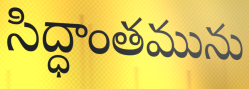
సిద్ధాంతమును